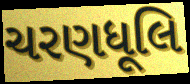
ચરણધૂલિ